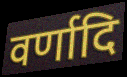
वर्णादि